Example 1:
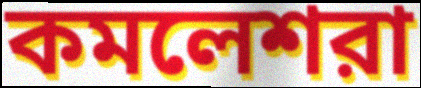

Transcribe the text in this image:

কমলেশরা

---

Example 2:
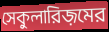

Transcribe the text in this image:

সেকুলারিজ়মের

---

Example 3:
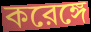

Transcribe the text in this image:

করেঙ্গে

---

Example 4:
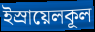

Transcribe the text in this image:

ইস্রায়েলকূল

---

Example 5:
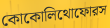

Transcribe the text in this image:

কোকোলিথোফোরস